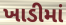
ખાડીમાં